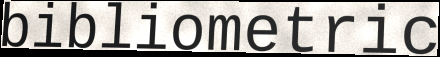
bibliometric